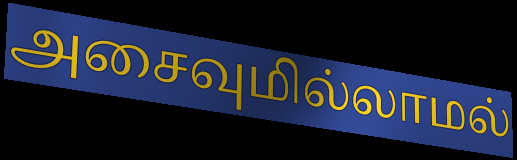
அசைவுமில்லாமல்